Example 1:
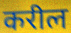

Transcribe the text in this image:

करील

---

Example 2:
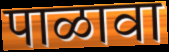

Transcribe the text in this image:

पाळावा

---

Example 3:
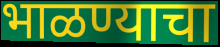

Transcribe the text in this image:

भाळण्याचा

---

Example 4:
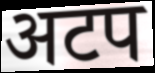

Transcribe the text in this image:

अटप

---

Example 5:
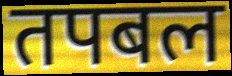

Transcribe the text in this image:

तपबल